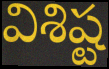
విశిష్ట